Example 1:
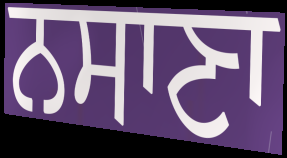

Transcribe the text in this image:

ਨਸਾਣਾ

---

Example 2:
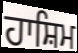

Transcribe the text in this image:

ਹਾਸ਼ਿਮ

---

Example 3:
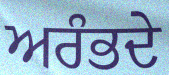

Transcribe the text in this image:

ਅਰੰਭਦੇ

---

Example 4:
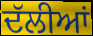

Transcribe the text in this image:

ਦੱਲੀਆਂ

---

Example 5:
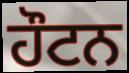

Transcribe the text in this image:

ਹੌਟਨ